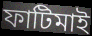
ফাটিমাই